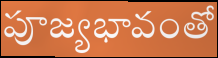
పూజ్యభావంతో